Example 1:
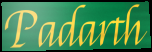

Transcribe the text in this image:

Padarth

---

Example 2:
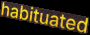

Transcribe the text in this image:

habituated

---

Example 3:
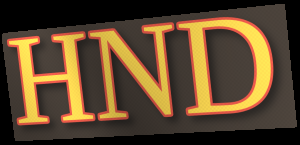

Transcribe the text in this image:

HND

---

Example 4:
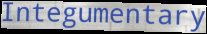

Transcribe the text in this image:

Integumentary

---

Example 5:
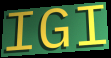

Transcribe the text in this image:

IGI